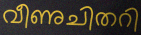
വീണുചിതറി